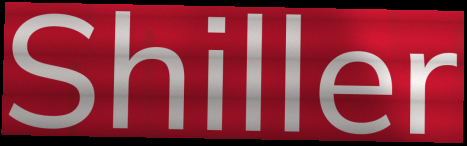
Shiller